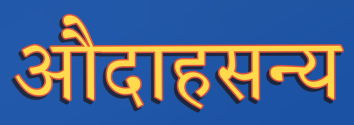
औदाहसन्य